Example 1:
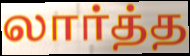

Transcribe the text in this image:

லார்த்த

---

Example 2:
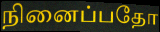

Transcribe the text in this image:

நினைப்பதோ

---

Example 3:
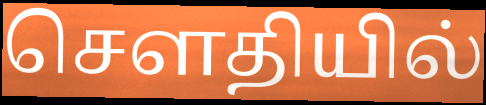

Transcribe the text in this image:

செளதியில்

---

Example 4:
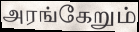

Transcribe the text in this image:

அரங்கேறும்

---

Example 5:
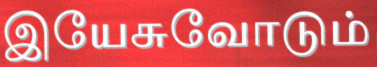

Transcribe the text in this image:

இயேசுவோடும்